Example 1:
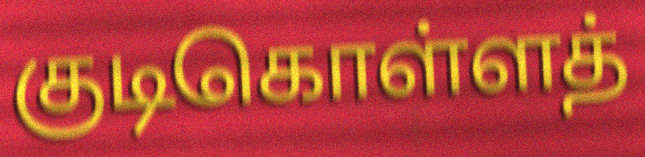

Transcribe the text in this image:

குடிகொள்ளத்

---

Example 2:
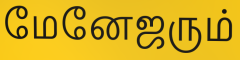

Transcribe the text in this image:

மேனேஜரும்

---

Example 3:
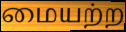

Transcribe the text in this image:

மையற்ற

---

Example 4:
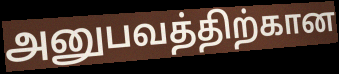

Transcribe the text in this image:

அனுபவத்திற்கான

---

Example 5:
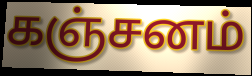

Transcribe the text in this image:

கஞ்சனம்